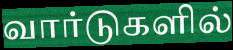
வார்டுகளில்